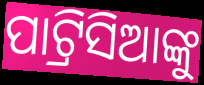
ପାଟ୍ରିସିଆଙ୍କୁ